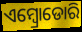
ଏମ୍ବ୍ରୋଡୋରି